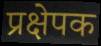
प्रक्षेपक